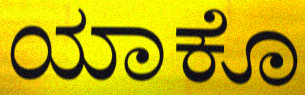
ಯಾಕೊ